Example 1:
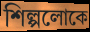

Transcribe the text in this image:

শিল্পলোকে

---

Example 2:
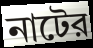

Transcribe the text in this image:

নাটের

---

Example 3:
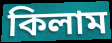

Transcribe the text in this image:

কিলাম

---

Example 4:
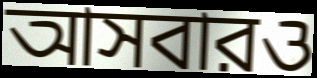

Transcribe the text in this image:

আসবারও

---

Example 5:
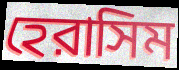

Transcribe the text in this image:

হেরাসিম